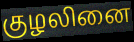
குழலினை